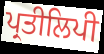
ਪ੍ਰਤੀਲਿਪੀ